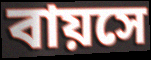
বায়সে